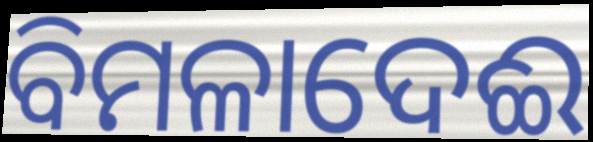
ବିମଳାଦେଈ